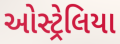
ઓસ્ટ્રેલિયા